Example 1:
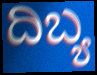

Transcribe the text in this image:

ದಿಬ್ಯ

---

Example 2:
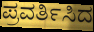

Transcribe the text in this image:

ಪ್ರವರ್ತಿಸಿದ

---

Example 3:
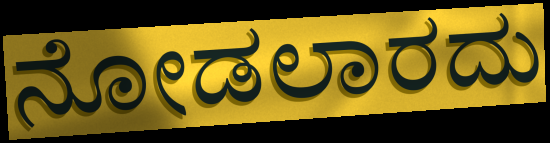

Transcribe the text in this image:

ನೋಡಲಾರದು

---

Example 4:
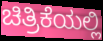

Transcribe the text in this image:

ಚಿತ್ರಿಕೆಯಲ್ಲಿ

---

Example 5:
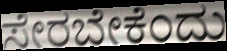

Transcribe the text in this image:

ಸೇರಬೇಕೆಂದು